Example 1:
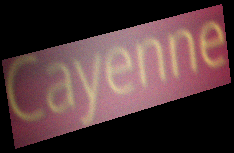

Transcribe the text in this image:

Cayenne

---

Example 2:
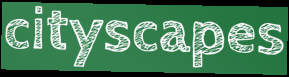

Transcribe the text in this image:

cityscapes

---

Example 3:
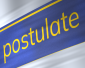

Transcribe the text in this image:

postulate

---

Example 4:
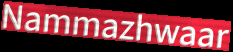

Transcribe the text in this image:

Nammazhwaar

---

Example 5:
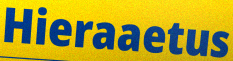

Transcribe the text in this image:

Hieraaetus